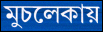
মুচলেকায়